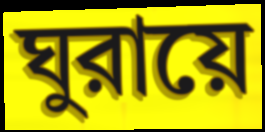
ঘুরায়ে